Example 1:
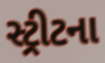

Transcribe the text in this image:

સ્ટ્રીટના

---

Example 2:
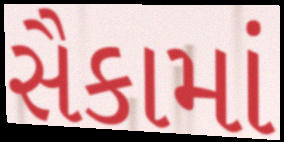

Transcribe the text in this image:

સૈકામાં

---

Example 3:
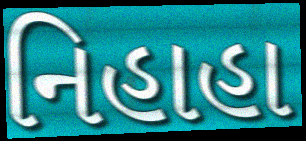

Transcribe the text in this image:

નિહાહા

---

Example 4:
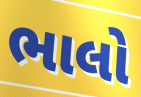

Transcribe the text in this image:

ભાલો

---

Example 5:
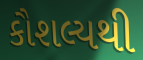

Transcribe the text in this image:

કૌશલ્યથી